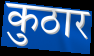
कुठार